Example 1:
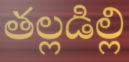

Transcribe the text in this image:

తల్లడిల్లి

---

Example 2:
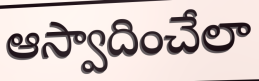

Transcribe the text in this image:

ఆస్వాదించేలా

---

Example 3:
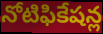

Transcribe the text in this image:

నోటిఫికేషన్ల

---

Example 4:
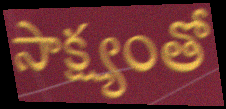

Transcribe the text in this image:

సాక్ష్యంతో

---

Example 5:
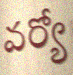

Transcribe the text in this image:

వర్యో